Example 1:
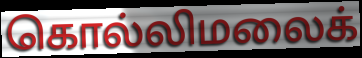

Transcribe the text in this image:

கொல்லிமலைக்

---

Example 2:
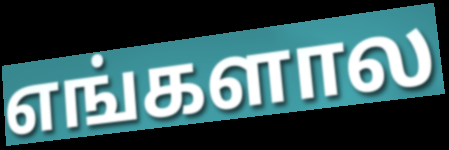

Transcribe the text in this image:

எங்களால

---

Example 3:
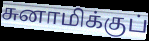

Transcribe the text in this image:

சுனாமிக்குப்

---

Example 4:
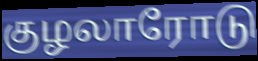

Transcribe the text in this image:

குழலாரோடு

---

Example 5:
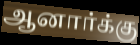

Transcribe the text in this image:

ஆனார்க்கு